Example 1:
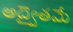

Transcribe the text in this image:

అద్వైతమే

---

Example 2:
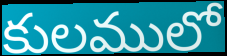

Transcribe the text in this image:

కులములో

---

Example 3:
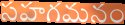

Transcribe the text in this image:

సహగమనం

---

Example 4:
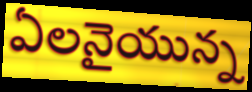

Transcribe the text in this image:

ఏలనైయున్న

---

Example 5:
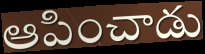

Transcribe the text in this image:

ఆపించాడు